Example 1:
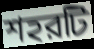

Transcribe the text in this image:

শহরটি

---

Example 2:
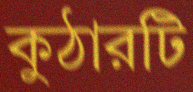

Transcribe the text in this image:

কুঠারটি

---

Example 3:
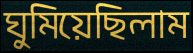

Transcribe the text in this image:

ঘুমিয়েছিলাম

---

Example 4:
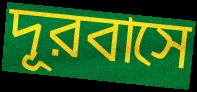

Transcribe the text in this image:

দূরবাসে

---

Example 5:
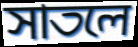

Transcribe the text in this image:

সাতলে